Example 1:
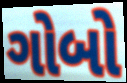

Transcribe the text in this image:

ગોબો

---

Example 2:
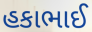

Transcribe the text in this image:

હકાભાઈ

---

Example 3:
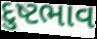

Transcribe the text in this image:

દુષ્ટભાવ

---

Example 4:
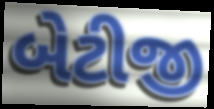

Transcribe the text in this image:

બેટીજી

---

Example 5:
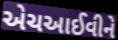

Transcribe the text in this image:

એચઆઈવીને